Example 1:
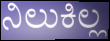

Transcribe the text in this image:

ನಿಲುಕಿಲ್ಲ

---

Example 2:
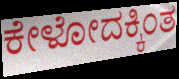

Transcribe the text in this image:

ಕೇಳೋದಕ್ಕಿಂತ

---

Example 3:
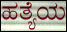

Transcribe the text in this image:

ಹತ್ಯೆಯ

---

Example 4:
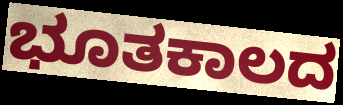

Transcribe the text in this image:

ಭೂತಕಾಲದ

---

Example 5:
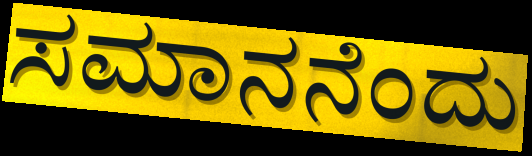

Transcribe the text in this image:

ಸಮಾನನೆಂದು